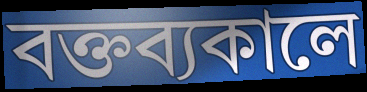
বক্তব্যকালে